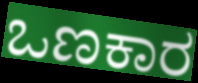
ಒಣಕಾರ